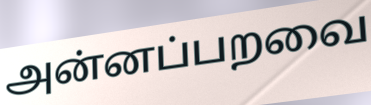
அன்னப்பறவை